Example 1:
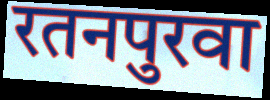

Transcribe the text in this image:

रतनपुरवा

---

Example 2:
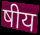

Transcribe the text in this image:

षीय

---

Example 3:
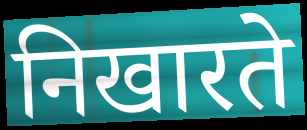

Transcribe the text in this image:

निखारते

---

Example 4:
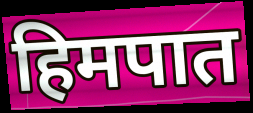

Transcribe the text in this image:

हिमपात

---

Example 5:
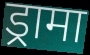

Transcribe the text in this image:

ड्रामा